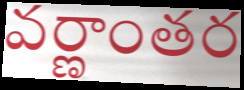
వర్ణాంతర